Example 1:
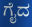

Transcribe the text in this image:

ಗೈದ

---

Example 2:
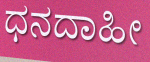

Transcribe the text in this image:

ಧನದಾಹೀ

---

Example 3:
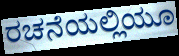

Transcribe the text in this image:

ರಚನೆಯಲ್ಲಿಯೂ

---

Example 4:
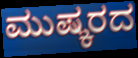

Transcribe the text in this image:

ಮುಷ್ಕರದ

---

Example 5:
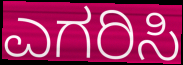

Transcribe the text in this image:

ಎಗರಿಸಿ